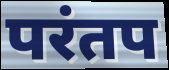
परंतप